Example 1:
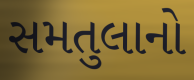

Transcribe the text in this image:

સમતુલાનો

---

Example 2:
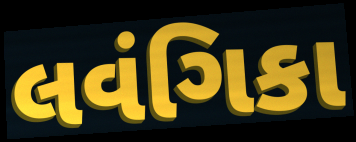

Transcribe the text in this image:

લવંગિકા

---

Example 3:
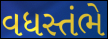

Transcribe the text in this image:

વધસ્તંભે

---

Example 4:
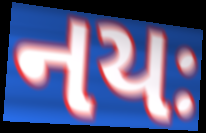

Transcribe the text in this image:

નયઃ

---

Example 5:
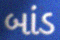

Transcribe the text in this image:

બાંડ